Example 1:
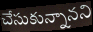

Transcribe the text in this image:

చేసుకున్నానని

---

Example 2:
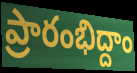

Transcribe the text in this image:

ప్రారంభిద్దాం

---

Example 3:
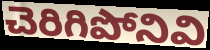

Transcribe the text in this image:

చెరిగిపోనివి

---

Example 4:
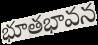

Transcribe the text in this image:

భూతభావన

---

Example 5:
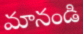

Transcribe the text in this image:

మానండి